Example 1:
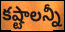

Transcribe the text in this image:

కష్టాలన్నీ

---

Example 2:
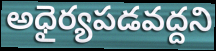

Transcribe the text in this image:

అధైర్యపడవద్దని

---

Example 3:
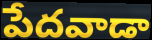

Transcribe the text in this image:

పేదవాడా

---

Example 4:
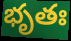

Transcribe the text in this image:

భృతః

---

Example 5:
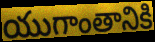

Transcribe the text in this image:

యుగాంతానికి